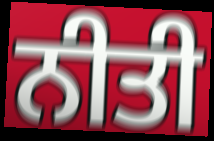
ਨੀਤੀ